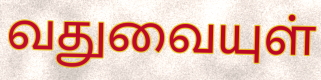
வதுவையுள்